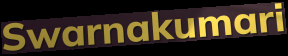
Swarnakumari